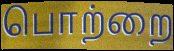
பொற்றை